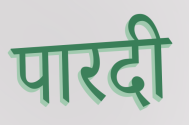
पारदी